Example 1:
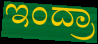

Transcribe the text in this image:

ಇಂದ್ರಾ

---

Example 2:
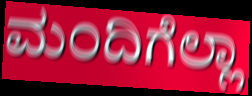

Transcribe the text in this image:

ಮಂದಿಗೆಲ್ಲಾ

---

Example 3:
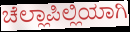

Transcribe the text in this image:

ಚೆಲ್ಲಾಪಿಲ್ಲಿಯಾಗಿ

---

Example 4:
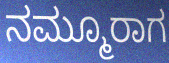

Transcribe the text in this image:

ನಮ್ಮೂರಾಗ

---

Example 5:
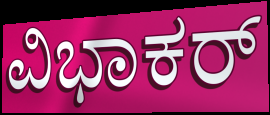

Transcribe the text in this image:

ವಿಭಾಕರ್